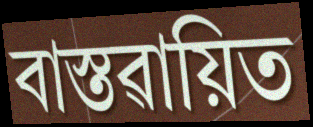
বাস্তৱায়িত